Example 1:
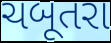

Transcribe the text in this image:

ચબૂતરા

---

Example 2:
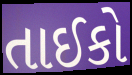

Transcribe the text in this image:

તાઈકો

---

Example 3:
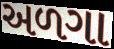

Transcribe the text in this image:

અળગા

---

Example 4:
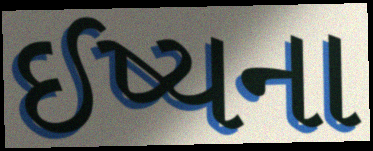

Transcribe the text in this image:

ઈષ્યના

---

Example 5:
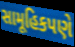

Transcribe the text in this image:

સામૂહિકપણે